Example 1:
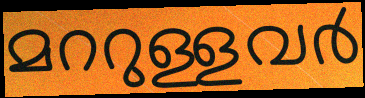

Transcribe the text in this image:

മററുള്ളവർ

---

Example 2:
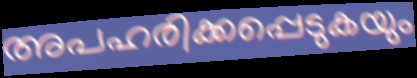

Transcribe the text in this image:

അപഹരിക്കപ്പെടുകയും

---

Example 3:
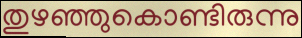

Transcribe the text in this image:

തുഴഞ്ഞുകൊണ്ടിരുന്നു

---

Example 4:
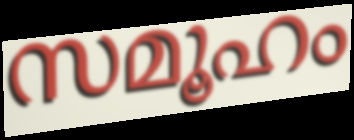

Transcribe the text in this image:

സമൂഹം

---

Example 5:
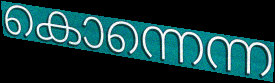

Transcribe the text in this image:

കൊന്നെന്ന